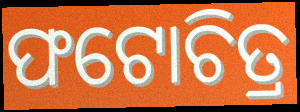
ଫଟୋଚିତ୍ର